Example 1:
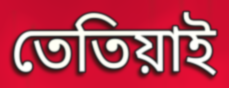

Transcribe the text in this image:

তেতিয়াই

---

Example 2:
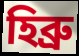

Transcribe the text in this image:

হিব্ৰু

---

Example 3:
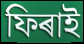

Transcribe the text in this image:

ফিৰাই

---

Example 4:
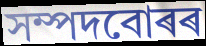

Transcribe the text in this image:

সম্পদবোৰৰ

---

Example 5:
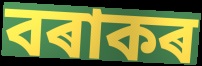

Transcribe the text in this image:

বৰাকৰ